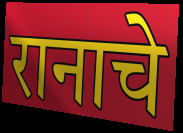
रानाचे